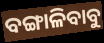
ବଙ୍ଗାଳିବାବୁ